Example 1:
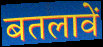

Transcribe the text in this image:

बतलावें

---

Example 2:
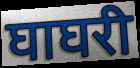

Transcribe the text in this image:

घाघरी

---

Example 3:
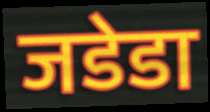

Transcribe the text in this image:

जडेडा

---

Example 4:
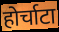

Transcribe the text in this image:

होर्चाटा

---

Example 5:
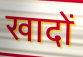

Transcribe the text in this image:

खादों